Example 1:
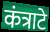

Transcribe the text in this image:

कंत्राटे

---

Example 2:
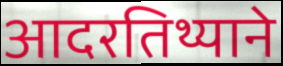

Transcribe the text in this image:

आदरतिथ्याने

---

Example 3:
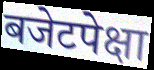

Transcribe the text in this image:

बजेटपेक्षा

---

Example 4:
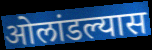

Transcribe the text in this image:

ओलांडल्यास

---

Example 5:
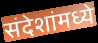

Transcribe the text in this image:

संदेशांमध्ये